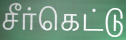
சீர்கெட்டு